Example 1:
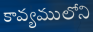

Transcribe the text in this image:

కావ్యములోని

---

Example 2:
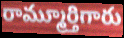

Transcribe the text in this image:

రామ్మూర్తిగారు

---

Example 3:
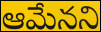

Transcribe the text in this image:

ఆమేనని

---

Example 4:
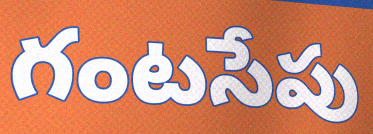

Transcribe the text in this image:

గంటసేపు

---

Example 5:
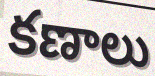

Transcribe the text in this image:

కణాలు